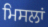
ਮਿਸਲਾਂ